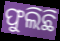
ଫୁଲିଛି